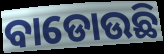
ବାଡୋଉଛି